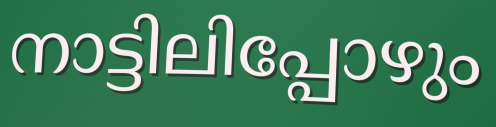
നാട്ടിലിപ്പോഴും